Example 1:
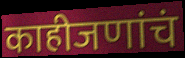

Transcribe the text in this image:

काहीजणांचं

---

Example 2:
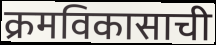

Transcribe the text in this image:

क्रमविकासाची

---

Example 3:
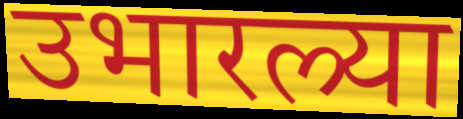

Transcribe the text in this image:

उभारल्या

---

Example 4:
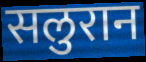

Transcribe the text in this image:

सलुरान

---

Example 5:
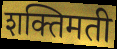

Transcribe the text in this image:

शक्तिमती